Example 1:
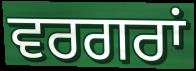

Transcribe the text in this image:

ਵਰਗਰਾਂ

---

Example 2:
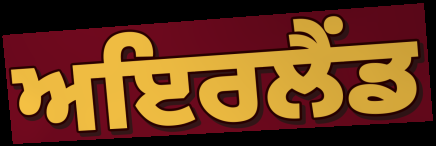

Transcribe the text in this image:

ਅਇਰਲੈਂਡ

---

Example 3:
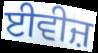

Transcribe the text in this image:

ਈਵੀਜ਼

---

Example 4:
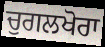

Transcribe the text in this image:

ਚੁਗਲਖੋਰਾ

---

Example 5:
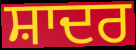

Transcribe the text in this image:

ਸ਼ਾਦਰ